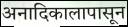
अनादिकालापासून